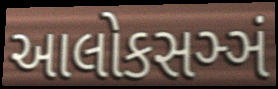
આલોકસઞ્ઞં